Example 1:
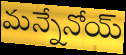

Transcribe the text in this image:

మన్నేనోయ్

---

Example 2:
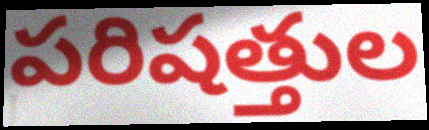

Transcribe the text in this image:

పరిషత్తుల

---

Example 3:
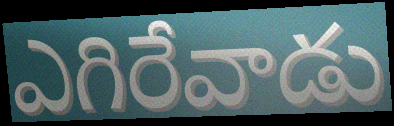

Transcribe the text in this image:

ఎగిరేవాడు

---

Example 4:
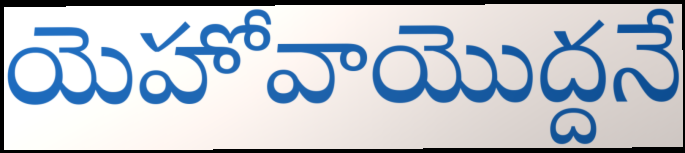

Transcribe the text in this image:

యెహోవాయొద్దనే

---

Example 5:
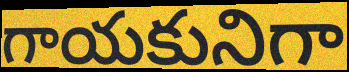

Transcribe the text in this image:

గాయకునిగా